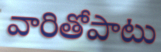
వారితోపాటు